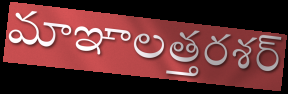
మాఞాలత్తరశర్